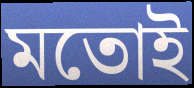
মতোই